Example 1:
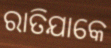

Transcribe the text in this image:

ରାତିଯାକେ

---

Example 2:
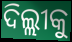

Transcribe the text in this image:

ଦିଲ୍ଲୀକୁ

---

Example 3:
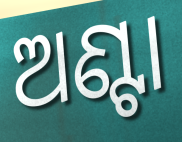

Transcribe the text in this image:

ଅଣ୍ଟା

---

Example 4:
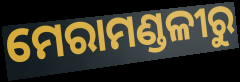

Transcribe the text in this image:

ମେରାମଣ୍ଡଳୀରୁ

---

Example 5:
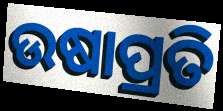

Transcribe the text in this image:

ଉଷାପ୍ରତି